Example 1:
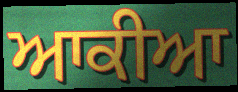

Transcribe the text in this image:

ਆਕੀਆ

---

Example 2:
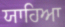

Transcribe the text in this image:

ਯਾਹਿਆ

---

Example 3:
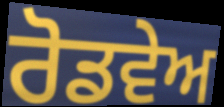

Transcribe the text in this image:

ਰੋਡਵੇਅ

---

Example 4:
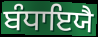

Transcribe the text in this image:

ਬੰਧਾਇਯੈ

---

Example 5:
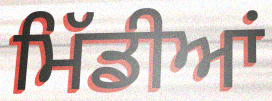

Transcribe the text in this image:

ਮਿੱਡੀਆਂ